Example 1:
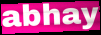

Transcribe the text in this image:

abhay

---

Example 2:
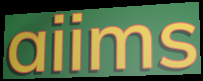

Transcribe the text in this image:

aiims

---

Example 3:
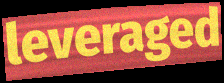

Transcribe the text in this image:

leveraged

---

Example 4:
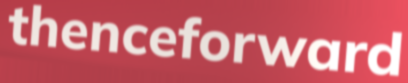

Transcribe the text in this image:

thenceforward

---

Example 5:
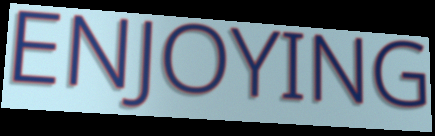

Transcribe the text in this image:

ENJOYING